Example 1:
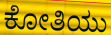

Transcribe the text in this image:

ಕೋತಿಯು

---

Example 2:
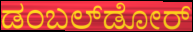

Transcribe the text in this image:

ಡಂಬಲ್‌ಡೋರ್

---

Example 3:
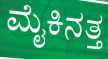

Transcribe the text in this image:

ಮೈಕಿನತ್ತ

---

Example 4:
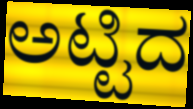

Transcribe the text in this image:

ಅಟ್ಟಿದ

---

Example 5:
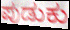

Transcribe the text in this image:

ಪುಡುಕು